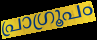
പ്രാഗ്രൂപം